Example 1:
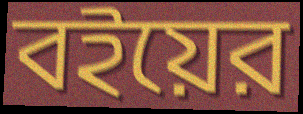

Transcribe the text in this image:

বইয়ের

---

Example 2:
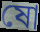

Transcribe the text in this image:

ষো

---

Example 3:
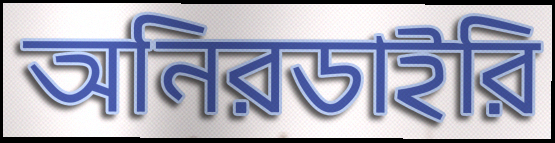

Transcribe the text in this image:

অনিরডাইরি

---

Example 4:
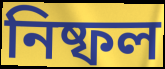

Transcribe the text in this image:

নিষ্ফল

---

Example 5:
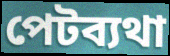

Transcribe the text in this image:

পেটব্যথা